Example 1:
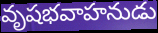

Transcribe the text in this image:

వృషభవాహనుడు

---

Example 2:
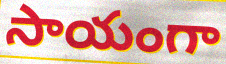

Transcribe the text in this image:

సాయంగా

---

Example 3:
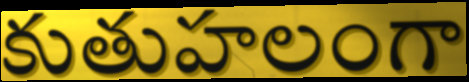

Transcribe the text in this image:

కుతుహలంగా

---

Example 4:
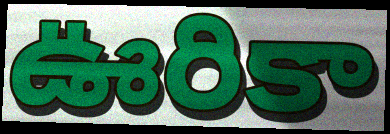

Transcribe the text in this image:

ఊరికా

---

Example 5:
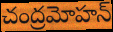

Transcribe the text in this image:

చంద్రమోహన్